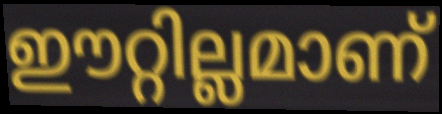
ഈറ്റില്ലമാണ്